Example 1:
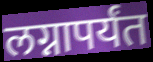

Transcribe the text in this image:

लग्नापर्यंत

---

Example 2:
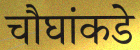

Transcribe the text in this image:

चौघांकडे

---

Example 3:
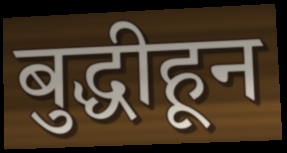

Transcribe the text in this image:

बुद्धीहून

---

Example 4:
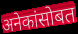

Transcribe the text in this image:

अनेकांसोबत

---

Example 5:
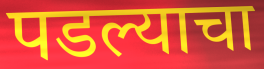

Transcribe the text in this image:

पडल्याचा